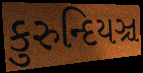
કુરુન્દિયઞ્ચ